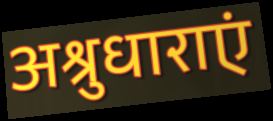
अश्रुधाराएं